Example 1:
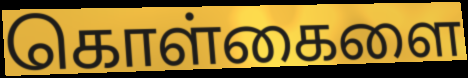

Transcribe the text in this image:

கொள்கைளை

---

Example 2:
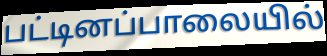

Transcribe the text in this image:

பட்டினப்பாலையில்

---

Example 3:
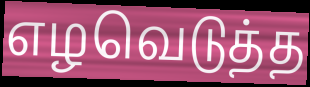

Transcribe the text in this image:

எழவெடுத்த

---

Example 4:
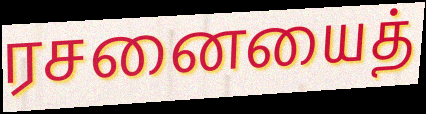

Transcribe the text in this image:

ரசனையைத்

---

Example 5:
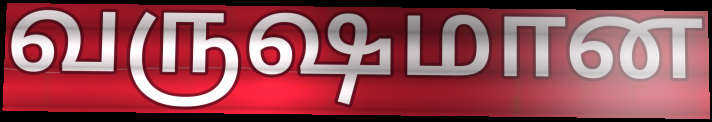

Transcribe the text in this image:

வருஷமான